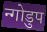
न्गोडुप